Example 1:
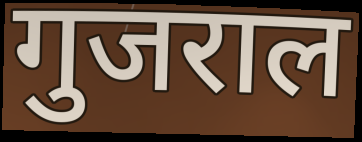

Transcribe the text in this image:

गुजराल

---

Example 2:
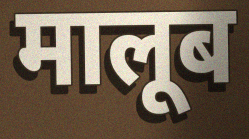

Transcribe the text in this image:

मालूब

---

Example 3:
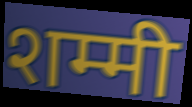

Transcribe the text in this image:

शम्मी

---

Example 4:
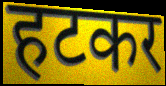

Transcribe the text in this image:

हटकर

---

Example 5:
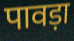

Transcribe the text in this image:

पावड़ा